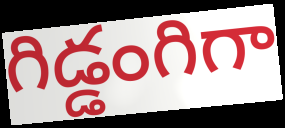
గిడ్డంగిగా